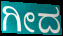
ಗೀದ